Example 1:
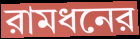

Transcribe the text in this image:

রামধনের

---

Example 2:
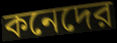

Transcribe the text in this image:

কনেদের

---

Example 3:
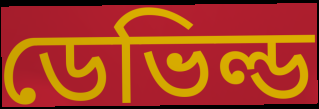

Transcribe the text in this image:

ডেভিল্ড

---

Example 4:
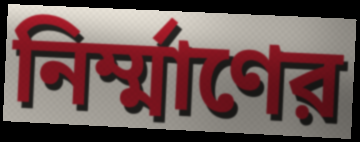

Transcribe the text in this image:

নির্ম্মাণের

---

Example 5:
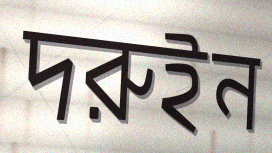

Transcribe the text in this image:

দরুইন